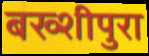
बख्शीपुरा